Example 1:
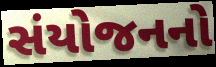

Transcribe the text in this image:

સંયોજનનો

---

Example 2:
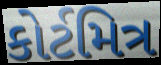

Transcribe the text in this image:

કોર્ટમિત્ર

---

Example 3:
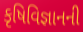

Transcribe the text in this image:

કૃષિવિજ્ઞાનની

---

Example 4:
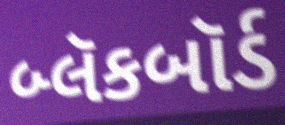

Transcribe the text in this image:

બ્લૅકબૉર્ડ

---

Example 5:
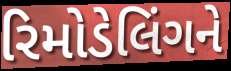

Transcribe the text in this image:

રિમોડેલિંગને